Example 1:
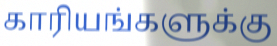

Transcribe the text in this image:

காரியங்களுக்கு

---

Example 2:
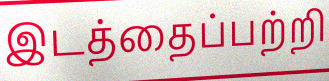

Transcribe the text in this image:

இடத்தைப்பற்றி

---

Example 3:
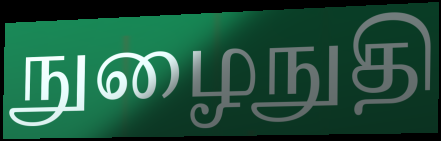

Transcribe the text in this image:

நுழைநுதி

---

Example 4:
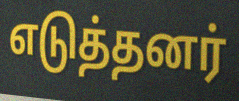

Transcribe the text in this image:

எடுத்தனர்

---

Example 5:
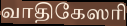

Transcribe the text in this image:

வாதிகேஸரி